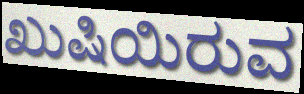
ಖುಷಿಯಿರುವ